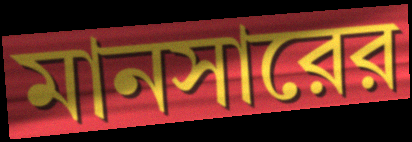
মানসারের